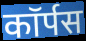
कॉर्पस